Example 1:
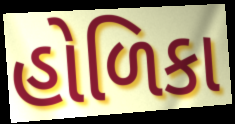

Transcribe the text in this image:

હોળિકા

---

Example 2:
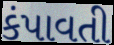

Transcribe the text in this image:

કંપાવતી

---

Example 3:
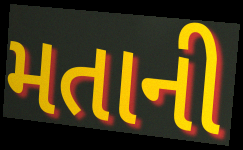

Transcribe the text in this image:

મતાની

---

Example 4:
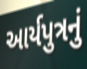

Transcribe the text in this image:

આર્યપુત્રનું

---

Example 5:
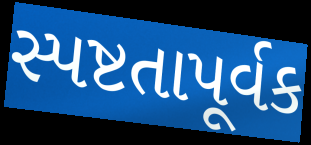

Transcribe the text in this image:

સ્પષ્ટતાપૂર્વક